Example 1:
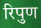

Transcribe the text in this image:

रिपुण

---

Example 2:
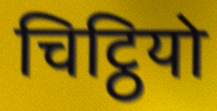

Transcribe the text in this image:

चिट्ठियो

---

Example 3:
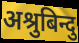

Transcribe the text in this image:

अश्रुबिन्दु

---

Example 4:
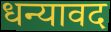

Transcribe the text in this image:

धन्यावद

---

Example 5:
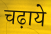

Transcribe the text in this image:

चढ़ाये